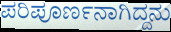
ಪರಿಪೂರ್ಣನಾಗಿದ್ದನು